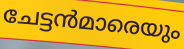
ചേട്ടൻമാരെയും